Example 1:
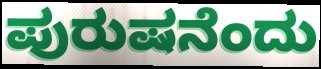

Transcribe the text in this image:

ಪುರುಷನೆಂದು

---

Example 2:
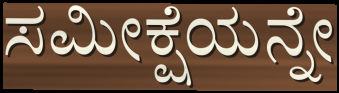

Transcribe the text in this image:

ಸಮೀಕ್ಷೆಯನ್ನೇ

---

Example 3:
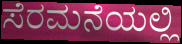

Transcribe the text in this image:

ಸೆರಮನೆಯಲ್ಲಿ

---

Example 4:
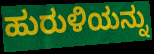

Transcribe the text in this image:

ಹುರುಳಿಯನ್ನು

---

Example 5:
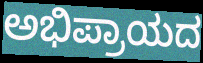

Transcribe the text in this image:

ಅಭಿಪ್ರಾಯದ